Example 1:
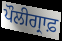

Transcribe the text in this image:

ਪੌਲੀਗ੍ਰਾਫ਼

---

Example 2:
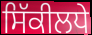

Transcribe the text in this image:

ਸਿੱਕੀਲਧੇ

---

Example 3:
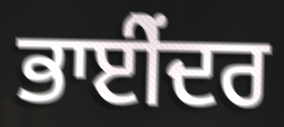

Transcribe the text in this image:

ਭਾਈੇਂਦਰ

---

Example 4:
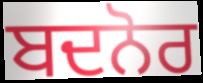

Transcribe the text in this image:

ਬਦਨੋਰ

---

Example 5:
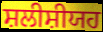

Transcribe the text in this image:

ਸ਼ਲੀਸ਼ੀਯਹ